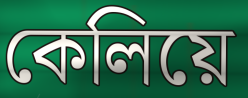
কেলিয়ে